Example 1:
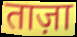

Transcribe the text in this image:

ताज़ा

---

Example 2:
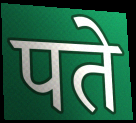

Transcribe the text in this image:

पते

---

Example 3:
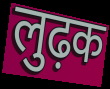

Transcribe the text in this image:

लुढ़क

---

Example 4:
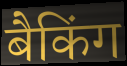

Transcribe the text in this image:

बैकिंग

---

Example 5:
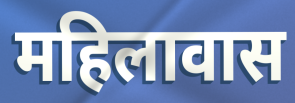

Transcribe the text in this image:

महिलावास